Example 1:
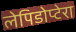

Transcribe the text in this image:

लेपिडोप्टेरा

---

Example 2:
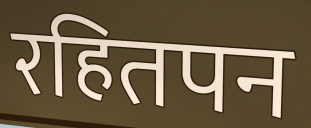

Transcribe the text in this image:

रहितपन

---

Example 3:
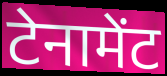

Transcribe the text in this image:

टेनामेंट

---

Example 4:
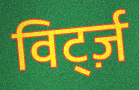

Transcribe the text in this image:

विर्ट्ज़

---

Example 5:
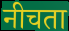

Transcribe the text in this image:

नीचता